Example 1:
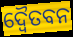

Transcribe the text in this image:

ଦ୍ୱୈତବନ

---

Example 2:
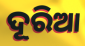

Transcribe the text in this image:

ଦୂରିଆ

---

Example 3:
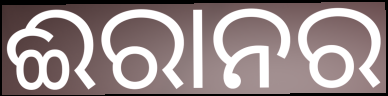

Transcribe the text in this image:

ଈରାନର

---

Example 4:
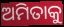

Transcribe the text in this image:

ଅମିତାକୁ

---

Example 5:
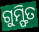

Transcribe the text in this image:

ଗୁମ୍ଫିତ